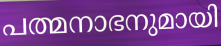
പത്മനാഭനുമായി